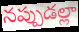
నప్పుడల్లా